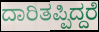
ದಾರಿತಪ್ಪಿದ್ದರೆ